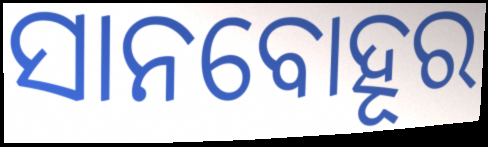
ସାନବୋହୂର